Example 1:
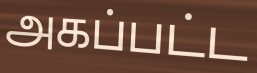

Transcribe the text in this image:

அகப்பட்ட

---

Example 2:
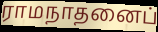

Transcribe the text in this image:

ராமநாதனைப்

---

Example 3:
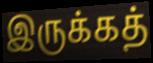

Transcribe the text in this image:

இருக்கத்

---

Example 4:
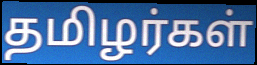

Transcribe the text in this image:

தமிழர்கள்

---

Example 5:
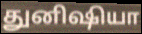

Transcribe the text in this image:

துனிஷியா